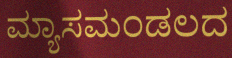
ಮ್ಯಾಸಮಂಡಲದ